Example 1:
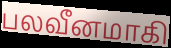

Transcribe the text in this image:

பலவீனமாகி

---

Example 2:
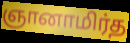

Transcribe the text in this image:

ஞானாமிர்த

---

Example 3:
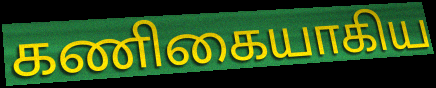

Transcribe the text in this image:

கணிகையாகிய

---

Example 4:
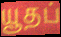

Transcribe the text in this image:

யூதப்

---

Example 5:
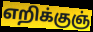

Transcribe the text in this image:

எறிக்குஞ்